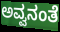
ಅವ್ವನಂತೆ